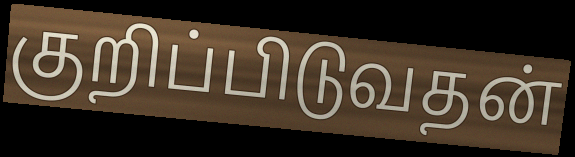
குறிப்பிடுவதன்